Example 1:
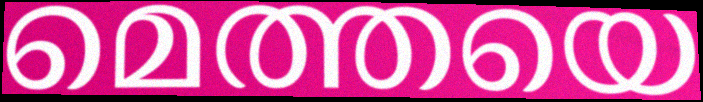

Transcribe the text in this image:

മെത്തയെ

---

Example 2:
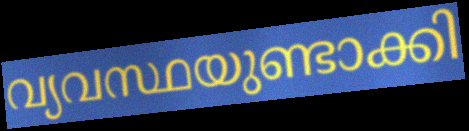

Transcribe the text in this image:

വ്യവസ്ഥയുണ്ടാക്കി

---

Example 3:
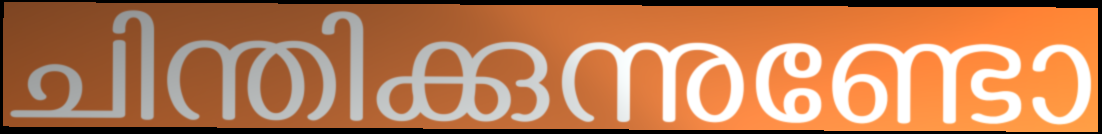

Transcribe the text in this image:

ചിന്തിക്കുന്നുണ്ടോ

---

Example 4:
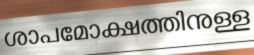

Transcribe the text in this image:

ശാപമോക്ഷത്തിനുള്ള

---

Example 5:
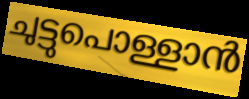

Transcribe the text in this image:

ചുട്ടുപൊള്ളാൻ